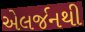
એલર્જનથી